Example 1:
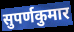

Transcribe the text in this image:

सुपर्णकुमार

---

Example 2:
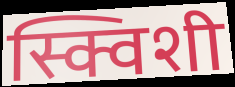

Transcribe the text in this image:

स्क्विशी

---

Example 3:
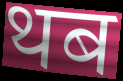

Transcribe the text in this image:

थब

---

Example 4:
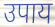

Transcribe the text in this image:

उपाय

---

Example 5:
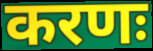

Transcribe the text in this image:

करणः